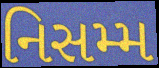
નિસમ્મ